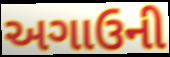
અગાઉની